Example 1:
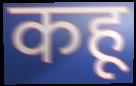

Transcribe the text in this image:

कहू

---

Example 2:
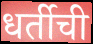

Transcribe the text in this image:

धर्तीची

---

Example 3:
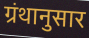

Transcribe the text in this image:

ग्रंथानुसार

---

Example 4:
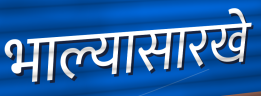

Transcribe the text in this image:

भाल्यासारखे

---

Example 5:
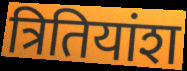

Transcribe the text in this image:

त्रितियांश